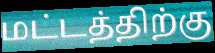
மட்டத்திற்கு